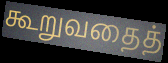
கூறுவதைத்